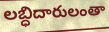
లబ్ధిదారులంతా